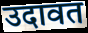
उदावत